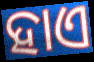
ହାଏ